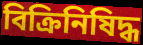
বিক্রিনিষিদ্ধ